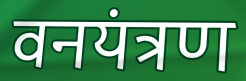
वनयंत्रण